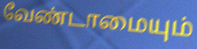
வேண்டாமையும்